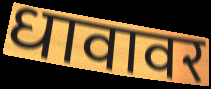
धावावर